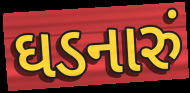
ઘડનારું